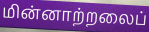
மின்னாற்றலைப்